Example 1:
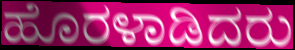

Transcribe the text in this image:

ಹೊರಳಾಡಿದರು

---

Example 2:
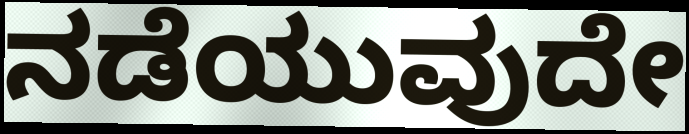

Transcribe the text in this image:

ನಡೆಯುವುದೇ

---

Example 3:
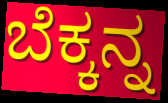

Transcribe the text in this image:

ಬೆಕ್ಕನ್ನ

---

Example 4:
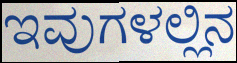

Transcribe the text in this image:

ಇವುಗಳಲ್ಲಿನ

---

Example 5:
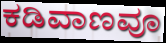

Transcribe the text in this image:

ಕಡಿವಾಣವೂ